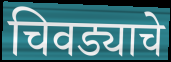
चिवड्याचे